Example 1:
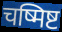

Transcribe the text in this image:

चष्मिष्ट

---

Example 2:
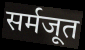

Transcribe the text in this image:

सर्मजूत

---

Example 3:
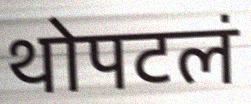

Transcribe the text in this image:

थोपटलं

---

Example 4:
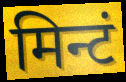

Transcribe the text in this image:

मिन्टं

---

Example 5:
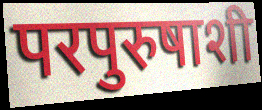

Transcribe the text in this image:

परपुरुषाशी